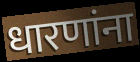
धारणांना